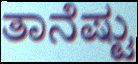
ತಾನೆಷ್ಟು